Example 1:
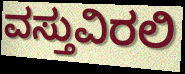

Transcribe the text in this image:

ವಸ್ತುವಿರಲಿ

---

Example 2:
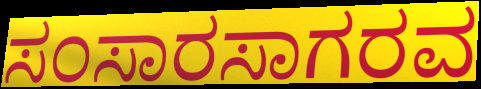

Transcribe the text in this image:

ಸಂಸಾರಸಾಗರವ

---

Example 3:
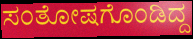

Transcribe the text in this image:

ಸಂತೋಷಗೊಂಡಿದ್ದ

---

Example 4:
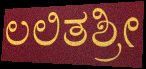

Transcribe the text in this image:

ಲಲಿತಶ್ರೀ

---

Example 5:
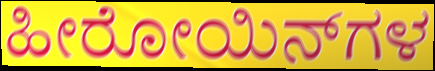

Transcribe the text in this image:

ಹೀರೋಯಿನ್‌ಗಳ